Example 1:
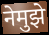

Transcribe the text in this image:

नेमुझे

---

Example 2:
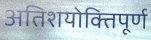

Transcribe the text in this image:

अतिशयोक्तिपूर्ण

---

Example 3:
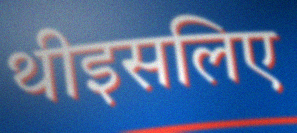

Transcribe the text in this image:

थीइसलिए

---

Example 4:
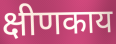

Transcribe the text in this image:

क्षीणकाय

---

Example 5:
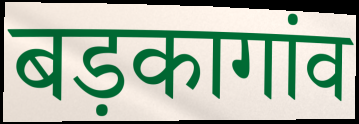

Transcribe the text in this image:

बड़कागांव